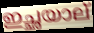
ഇച്ഛയാല്